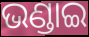
ଭଣ୍ଡାଇ